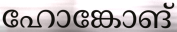
ഹോങ്കോങ്